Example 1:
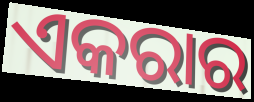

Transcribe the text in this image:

ଏକରାର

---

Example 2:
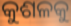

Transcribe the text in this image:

କୁଶଳକୁ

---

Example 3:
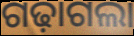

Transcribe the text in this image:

ଗଢ଼ାଗଲା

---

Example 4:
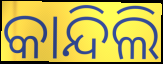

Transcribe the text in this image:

କାନ୍ଦିଲି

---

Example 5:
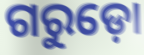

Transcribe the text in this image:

ଗରୁଡ଼ୋ